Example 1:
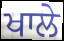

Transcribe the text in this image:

ਖਾਲੇ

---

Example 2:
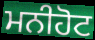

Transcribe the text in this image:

ਮਨੀਹੋਟ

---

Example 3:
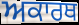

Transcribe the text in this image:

ਅਕਾਰਥ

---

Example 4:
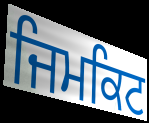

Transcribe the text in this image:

ਜਿਮਕਿਟ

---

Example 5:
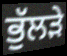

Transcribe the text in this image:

ਭੁੱਲੜੇ